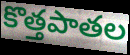
కొత్తపాతల